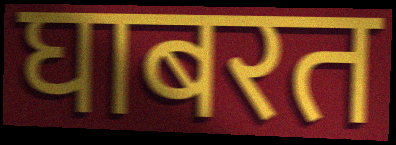
घाबरत